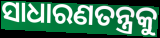
ସାଧାରଣତନ୍ତ୍ରକୁ